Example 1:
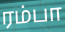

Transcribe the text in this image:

ரம்பா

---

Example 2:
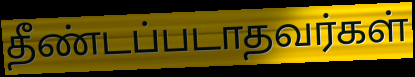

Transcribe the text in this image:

தீண்டப்படாதவர்கள்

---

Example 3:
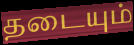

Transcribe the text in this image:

தடையும்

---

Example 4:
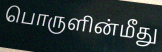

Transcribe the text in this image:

பொருளின்மீது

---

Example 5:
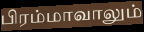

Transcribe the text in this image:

பிரம்மாவாலும்